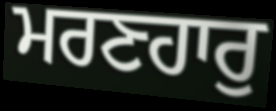
ਮਰਣਹਾਰੁ